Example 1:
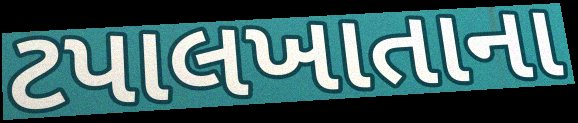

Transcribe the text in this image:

ટપાલખાતાના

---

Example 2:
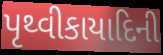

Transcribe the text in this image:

પૃથ્વીકાયાદિની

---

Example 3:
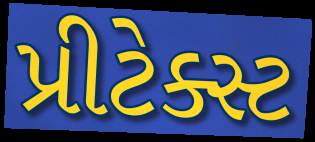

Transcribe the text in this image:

પ્રીટેક્સ્ટ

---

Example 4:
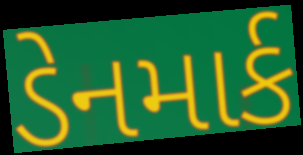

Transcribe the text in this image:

ડેનમાર્ક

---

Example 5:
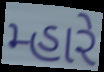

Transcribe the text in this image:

મ્હારે